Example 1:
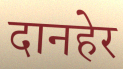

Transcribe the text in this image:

दानहेर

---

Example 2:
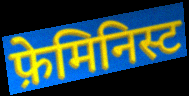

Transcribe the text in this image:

फ़ेमिनिस्ट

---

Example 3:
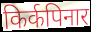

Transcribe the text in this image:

किर्कपिनार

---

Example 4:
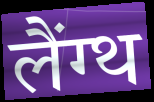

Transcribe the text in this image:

लैंग्थ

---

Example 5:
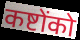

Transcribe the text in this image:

कष्टोंको